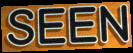
SEEN